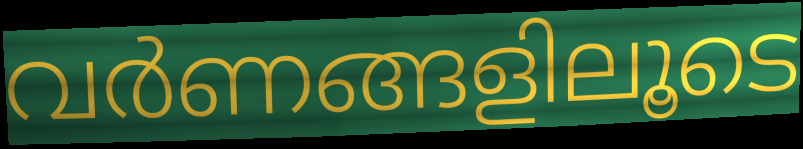
വർണങ്ങളിലൂടെ